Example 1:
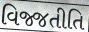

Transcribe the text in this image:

વિજ્જતીતિ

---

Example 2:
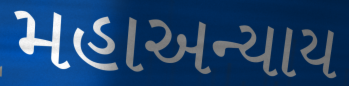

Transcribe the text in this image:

મહાઅન્યાય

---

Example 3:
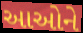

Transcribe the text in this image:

આઓને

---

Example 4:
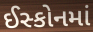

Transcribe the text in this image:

ઈસ્કોનમાં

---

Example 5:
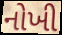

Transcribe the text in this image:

નોખી